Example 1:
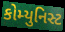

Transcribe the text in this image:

કોમ્યુનિસ્ટ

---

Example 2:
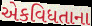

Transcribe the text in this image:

એકવિધતાના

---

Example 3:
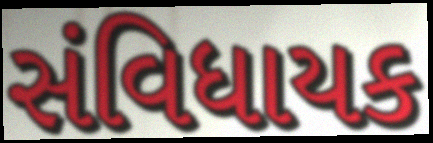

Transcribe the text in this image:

સંવિધાયક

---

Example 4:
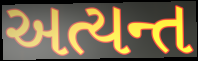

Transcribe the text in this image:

અત્યન્ત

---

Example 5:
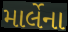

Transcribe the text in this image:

માર્લેના